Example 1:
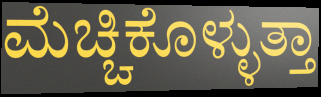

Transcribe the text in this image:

ಮೆಚ್ಚಿಕೊಳ್ಳುತ್ತಾ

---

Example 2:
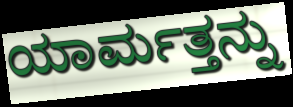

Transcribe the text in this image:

ಯಾರ್ಮತ್ತನ್ನು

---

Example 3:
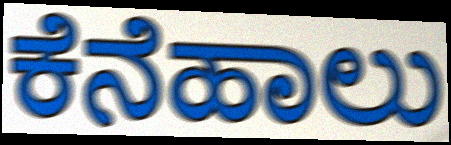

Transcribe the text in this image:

ಕೆನೆಹಾಲು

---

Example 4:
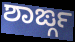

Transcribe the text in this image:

ಶಾರ್ಙ್ಗ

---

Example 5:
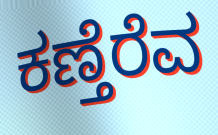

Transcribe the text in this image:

ಕಣ್ತೆರೆವ